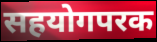
सहयोगपरक